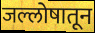
जल्लोषातून